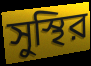
সুস্থির